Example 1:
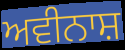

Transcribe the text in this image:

ਅਵੀਨਾਸ਼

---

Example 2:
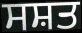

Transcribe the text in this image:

ਸਸ਼ਤ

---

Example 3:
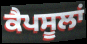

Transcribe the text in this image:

ਕੈਪਸੂਲਾਂ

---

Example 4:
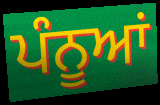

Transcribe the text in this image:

ਪੰਨੂਆਂ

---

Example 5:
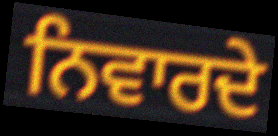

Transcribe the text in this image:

ਨਿਵਾਰਦੇ